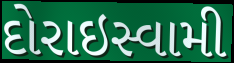
દોરાઇસ્વામી